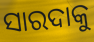
ସାରଦାକୁ